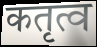
कतृत्व